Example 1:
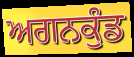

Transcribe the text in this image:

ਅਗਨਕੁੰਡ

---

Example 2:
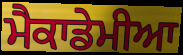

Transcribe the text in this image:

ਮੈਕਾਡੇਮੀਆ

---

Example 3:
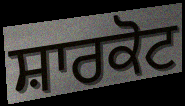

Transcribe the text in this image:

ਸ਼ਾਰਕੋਟ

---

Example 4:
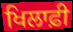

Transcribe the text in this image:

ਖਿਲਾਫ਼ੀ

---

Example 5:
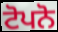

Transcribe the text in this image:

ਟੋਪਨੋ